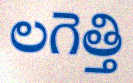
లగెత్తి